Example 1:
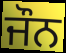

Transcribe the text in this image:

ਜੌਨ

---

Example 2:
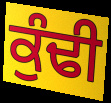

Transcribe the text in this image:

ਕੁੰਢੀ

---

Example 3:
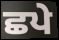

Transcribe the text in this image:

ਛਪੇ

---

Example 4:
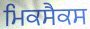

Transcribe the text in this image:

ਮਿਕਸੈਕਸ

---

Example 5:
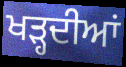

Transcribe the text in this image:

ਖੜ੍ਹਦੀਆਂ